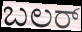
ಬಲರ್